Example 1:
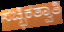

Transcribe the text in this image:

ಸಚ್ಛಿಕತ್ವಾತಿ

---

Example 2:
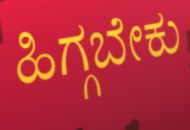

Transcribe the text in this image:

ಹಿಗ್ಗಬೇಕು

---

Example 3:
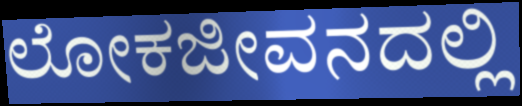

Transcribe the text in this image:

ಲೋಕಜೀವನದಲ್ಲಿ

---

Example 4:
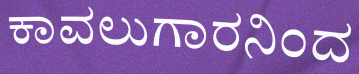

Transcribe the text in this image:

ಕಾವಲುಗಾರನಿಂದ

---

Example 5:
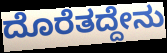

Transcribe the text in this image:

ದೊರೆತದ್ದೇನು